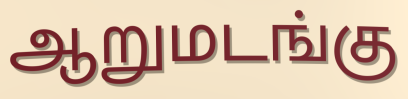
ஆறுமடங்கு